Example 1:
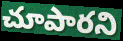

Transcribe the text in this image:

చూపారని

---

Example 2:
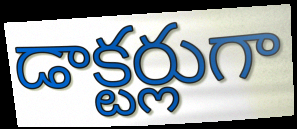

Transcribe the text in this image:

డాక్టర్లుగా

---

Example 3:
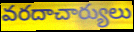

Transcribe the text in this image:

వరదాచార్యులు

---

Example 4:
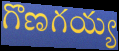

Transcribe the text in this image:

గొణగయ్య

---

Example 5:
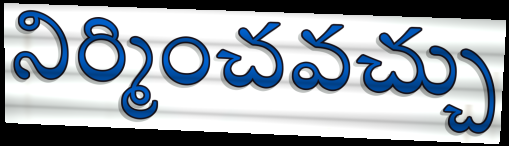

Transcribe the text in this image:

నిర్మించవచ్చు